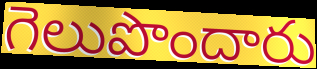
గెలుపొందారు